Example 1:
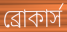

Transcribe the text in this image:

ব্রোকার্স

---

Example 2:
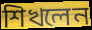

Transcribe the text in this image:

শিখলেন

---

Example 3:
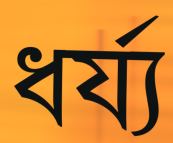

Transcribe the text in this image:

ধর্য্য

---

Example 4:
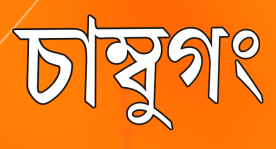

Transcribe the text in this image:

চাম্বুগং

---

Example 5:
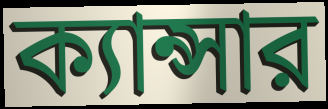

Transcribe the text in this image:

ক্যান্সার